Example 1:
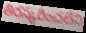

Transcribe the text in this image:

తిరస్కరించలేని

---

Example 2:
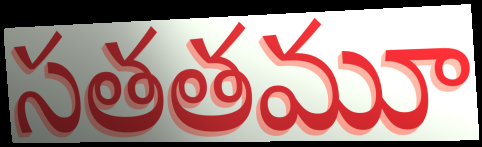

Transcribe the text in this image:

సతతమూ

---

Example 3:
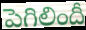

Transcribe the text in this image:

పెగిలిందీ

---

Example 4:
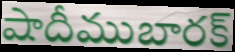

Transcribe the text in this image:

షాదీముబారక్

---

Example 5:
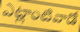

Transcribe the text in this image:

ఎట్లాంటివాడో